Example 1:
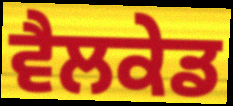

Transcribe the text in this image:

ਵੈਲਕੇਡ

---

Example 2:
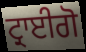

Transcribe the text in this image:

ਟ੍ਰਾਈਗੋ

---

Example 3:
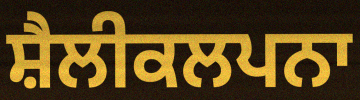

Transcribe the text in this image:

ਸ਼ੈਲੀਕਲਪਨਾ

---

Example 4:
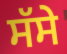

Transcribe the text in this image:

ਸੱਸੇ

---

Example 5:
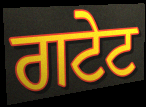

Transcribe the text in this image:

ਗਟੇਟ